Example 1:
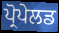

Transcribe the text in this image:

ਪ੍ਰੋਪੇਲਡ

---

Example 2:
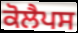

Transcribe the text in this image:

ਕੋਲੈਪਸ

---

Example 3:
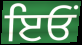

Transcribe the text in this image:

ਇਓਂ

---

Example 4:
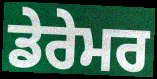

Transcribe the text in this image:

ਡੇਰੇਮਰ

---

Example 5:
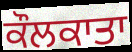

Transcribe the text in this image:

ਕੌਲਕਾਤਾ